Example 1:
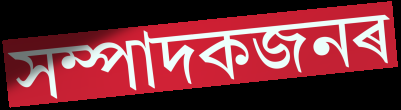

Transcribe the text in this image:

সম্পাদকজনৰ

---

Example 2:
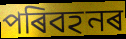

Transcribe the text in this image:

পৰিবহনৰ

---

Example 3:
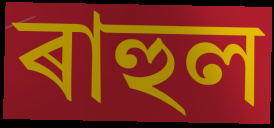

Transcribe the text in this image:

ৰাহুল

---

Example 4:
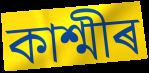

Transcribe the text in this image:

কাশ্মীৰ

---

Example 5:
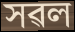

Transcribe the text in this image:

সৱল